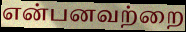
என்பனவற்றை